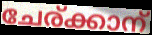
ചേര്ക്കാന്